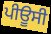
ਪੀਊਸੀ